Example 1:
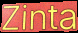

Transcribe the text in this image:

Zinta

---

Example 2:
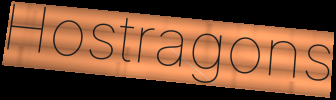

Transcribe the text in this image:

Hostragons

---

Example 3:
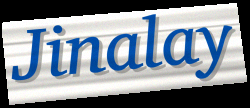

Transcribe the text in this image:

Jinalay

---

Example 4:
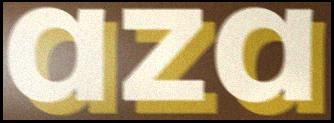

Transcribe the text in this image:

aza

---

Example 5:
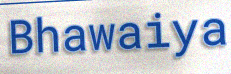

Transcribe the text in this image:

Bhawaiya